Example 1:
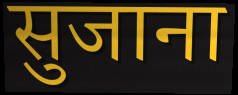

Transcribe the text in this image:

सुजाना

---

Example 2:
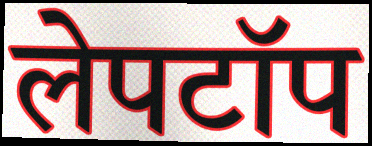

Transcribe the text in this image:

लेपटॉप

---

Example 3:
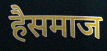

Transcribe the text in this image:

हैसमाज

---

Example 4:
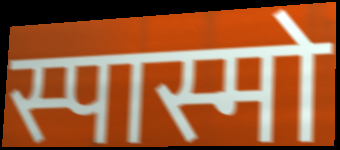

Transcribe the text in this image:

स्पास्मो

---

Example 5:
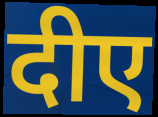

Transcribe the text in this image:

दीए